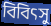
বিবিৎসু